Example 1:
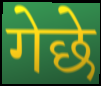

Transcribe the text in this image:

गेछे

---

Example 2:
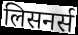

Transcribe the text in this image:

लिसनर्स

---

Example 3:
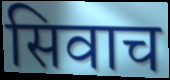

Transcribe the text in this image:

सिवाच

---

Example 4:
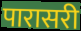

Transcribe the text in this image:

पारासरी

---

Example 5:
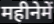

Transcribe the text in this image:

महीनेमें